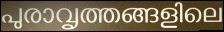
പുരാവൃത്തങ്ങളിലെ